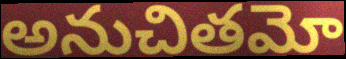
అనుచితమో